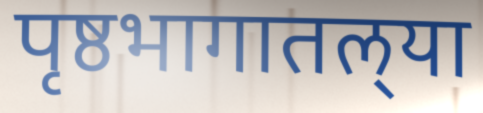
पृष्ठभागातल्या